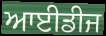
ਆਈਡੀਜ